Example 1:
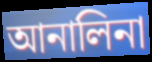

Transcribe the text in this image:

আনালিনা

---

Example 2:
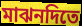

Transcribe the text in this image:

মাঝনদিতে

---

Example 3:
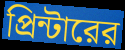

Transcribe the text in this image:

প্রিন্টারের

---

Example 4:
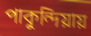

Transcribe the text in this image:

পাকুন্দিয়ায়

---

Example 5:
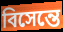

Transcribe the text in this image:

বিসেন্তে